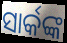
ସାର୍କଙ୍କ